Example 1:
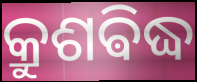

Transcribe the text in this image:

କ୍ରୁଶଵିଦ୍ଧ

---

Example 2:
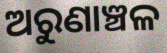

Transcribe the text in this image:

ଅରୁଣାଞ୍ଚଳ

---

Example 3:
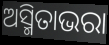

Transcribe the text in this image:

ଅସ୍ମିତାଭରା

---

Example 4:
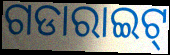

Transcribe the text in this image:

ଗଡାରାଇଟ୍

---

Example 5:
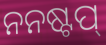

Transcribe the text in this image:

ନନଷ୍ଟପ୍